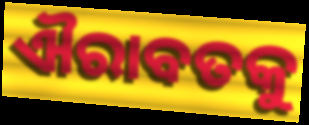
ଐରାବତକୁ